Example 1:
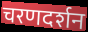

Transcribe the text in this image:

चरणदर्शन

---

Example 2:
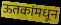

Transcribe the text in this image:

ऊतकांमधून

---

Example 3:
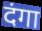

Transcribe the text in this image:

दंगा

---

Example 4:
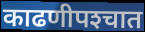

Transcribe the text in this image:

काढणीपश्‍चात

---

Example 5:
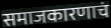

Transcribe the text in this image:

समाजकारणाचं